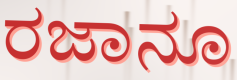
ರಜಾನೂ